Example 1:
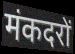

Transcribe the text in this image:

मंकदरों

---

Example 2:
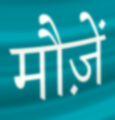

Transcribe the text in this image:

मौज़ें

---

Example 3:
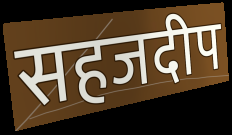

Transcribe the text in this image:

सहजदीप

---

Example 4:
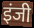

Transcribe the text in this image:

इंजी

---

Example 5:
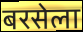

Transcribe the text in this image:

बरसेला